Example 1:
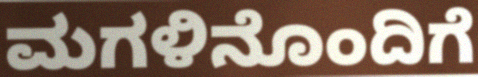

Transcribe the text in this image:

ಮಗಳಿನೊಂದಿಗೆ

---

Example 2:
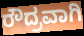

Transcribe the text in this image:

ರೌದ್ರವಾಗಿ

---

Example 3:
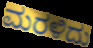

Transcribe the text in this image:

ಮರಳಿದು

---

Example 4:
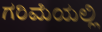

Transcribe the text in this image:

ಗರಿಮೆಯಲ್ಲಿ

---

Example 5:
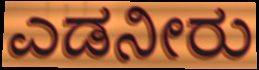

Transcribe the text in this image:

ಎಡನೀರು